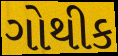
ગોથીક